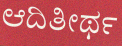
ಆದಿತೀರ್ಥ